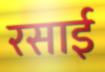
रसाई